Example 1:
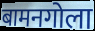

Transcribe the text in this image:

बामनगोला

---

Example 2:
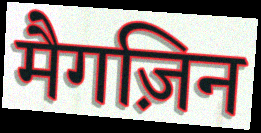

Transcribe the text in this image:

मैगज़िन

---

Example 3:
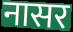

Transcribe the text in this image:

नासर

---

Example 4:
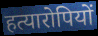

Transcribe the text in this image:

हत्यारोपियों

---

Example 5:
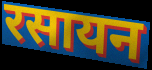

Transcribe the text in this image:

रसायन